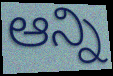
ఆన్ని